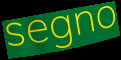
segno